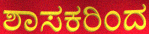
ಶಾಸಕರಿಂದ